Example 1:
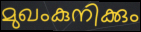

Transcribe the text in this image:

മുഖംകുനിക്കും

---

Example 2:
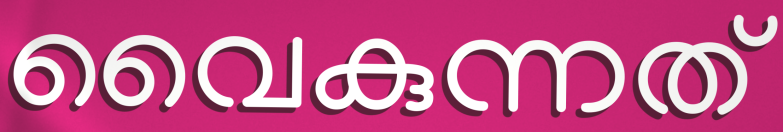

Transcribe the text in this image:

വൈകുന്നത്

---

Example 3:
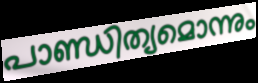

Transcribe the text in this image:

പാണ്ഡിത്യമൊന്നും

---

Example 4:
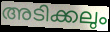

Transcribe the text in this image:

അടിക്കലും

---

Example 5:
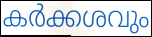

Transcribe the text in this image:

കർക്കശവും